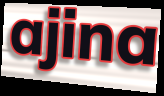
ajina